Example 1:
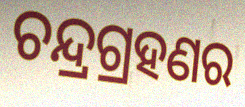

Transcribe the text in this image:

ଚନ୍ଦ୍ରଗ୍ରହଣର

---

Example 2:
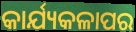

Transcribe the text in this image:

କାର୍ଯ୍ୟକଳାପର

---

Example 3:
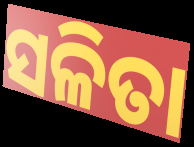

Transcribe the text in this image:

ସଳିତା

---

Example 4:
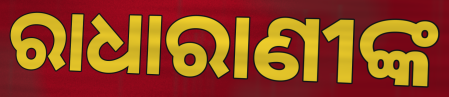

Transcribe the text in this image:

ରାଧାରାଣୀଙ୍କ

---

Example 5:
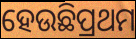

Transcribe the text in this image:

ହେଉଛିପ୍ରଥମ